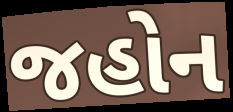
જહોન